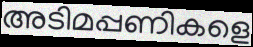
അടിമപ്പണികളെ